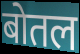
बोतल